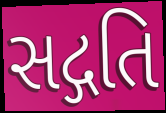
સદ્ગતિ